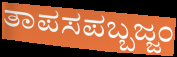
ತಾಪಸಪಬ್ಬಜ್ಜಂ